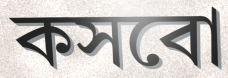
কসবো